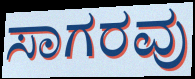
ಸಾಗರವು